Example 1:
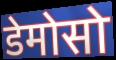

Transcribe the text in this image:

डेमोसो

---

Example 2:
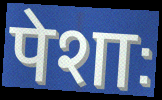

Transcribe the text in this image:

पेशाः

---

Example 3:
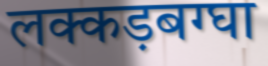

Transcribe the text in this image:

लक्कड़बग्घा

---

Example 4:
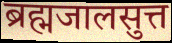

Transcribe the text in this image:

ब्रह्मजालसुत्त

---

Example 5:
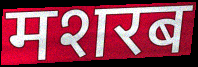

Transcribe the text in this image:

मशरब